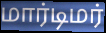
மார்டிமர்